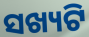
ସଖ୍ୟଟି